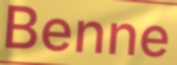
Benne